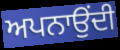
ਅਪਨਾਉਂਦੀ